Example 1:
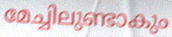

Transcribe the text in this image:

മേച്ചിലുണ്ടാകും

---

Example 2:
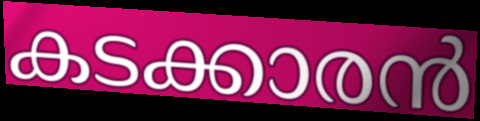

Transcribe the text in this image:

കടക്കാരൻ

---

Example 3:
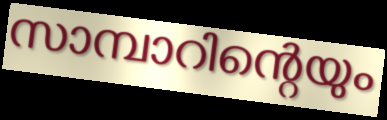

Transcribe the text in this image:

സാമ്പാറിന്റെയും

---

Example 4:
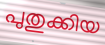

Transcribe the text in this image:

പുതുക്കിയ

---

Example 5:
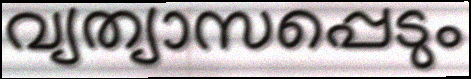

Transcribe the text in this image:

വ്യത്യാസപ്പെടും